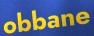
obbane